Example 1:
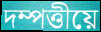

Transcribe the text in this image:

দম্পত্তীয়ে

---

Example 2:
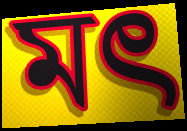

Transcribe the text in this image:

মৎ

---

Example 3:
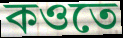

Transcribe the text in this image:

কওতে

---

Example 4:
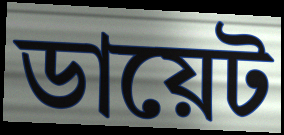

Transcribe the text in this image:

ডায়েট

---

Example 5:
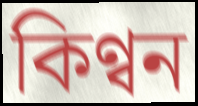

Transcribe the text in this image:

কিণ্বন